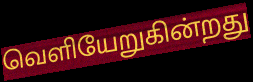
வெளியேறுகின்றது